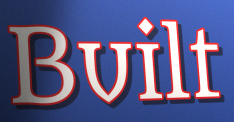
Built